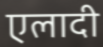
एलादी